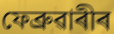
ফেব্ৰুৱাৰীৰ